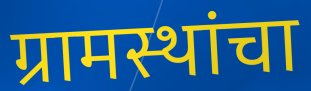
ग्रामस्थांचा